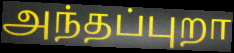
அந்தப்புறா